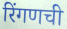
रिंगणची